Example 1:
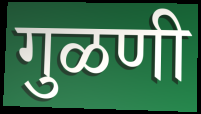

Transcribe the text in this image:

गुळणी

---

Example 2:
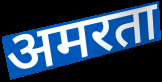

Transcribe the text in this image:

अमरता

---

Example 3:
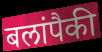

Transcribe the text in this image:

बलांपैकी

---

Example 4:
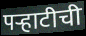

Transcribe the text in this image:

पऱ्हाटीची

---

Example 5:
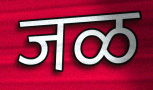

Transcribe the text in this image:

जळ